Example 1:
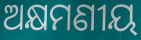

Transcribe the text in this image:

ଅକ୍ଷମଣୀୟ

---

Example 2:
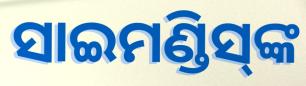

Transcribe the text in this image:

ସାଇମଣ୍ଡିସ୍‍ଙ୍କ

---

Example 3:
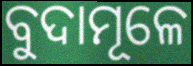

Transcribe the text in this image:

ବୁଦାମୂଳେ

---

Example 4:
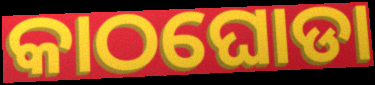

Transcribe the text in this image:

କାଠଘୋଡା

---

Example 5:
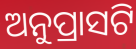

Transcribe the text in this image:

ଅନୁପ୍ରାସଟି